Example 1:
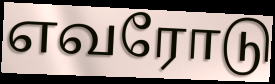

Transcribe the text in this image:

எவரோடு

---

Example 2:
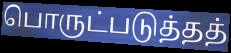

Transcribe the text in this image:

பொருட்படுத்தத்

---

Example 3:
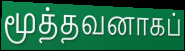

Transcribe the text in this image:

மூத்தவனாகப்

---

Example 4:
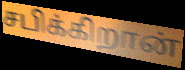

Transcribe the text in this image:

சபிக்கிறான்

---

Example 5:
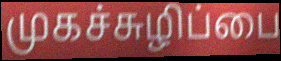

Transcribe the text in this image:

முகச்சுழிப்பை